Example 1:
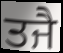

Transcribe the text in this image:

ਤਜੈ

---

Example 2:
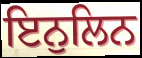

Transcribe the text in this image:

ਇਨੁਲਿਨ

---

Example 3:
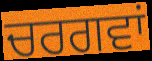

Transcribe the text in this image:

ਚਰਗਵਾਂ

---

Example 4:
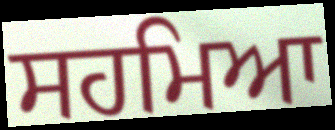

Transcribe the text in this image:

ਸਹਮਿਆ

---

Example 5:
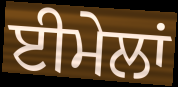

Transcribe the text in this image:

ਈਮੇਲਾਂ